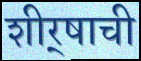
शीर्षाची